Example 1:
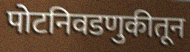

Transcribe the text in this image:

पोटनिवडणुकीतून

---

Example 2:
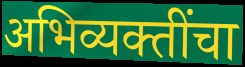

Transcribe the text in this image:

अभिव्यक्तींचा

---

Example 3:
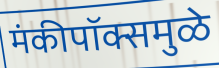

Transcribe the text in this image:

मंकीपॉक्समुळे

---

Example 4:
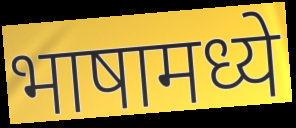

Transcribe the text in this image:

भाषामध्ये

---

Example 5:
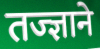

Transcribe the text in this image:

तज्ज्ञाने